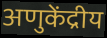
अणुकेंद्रीय